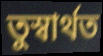
তুস্বাৰ্থত